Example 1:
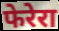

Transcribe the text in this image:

फेरेरा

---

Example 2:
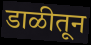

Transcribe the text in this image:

डाळीतून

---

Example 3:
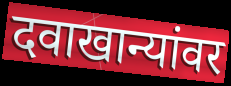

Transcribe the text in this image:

दवाखान्यांवर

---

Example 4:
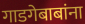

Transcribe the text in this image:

गाडगेबाबांना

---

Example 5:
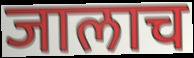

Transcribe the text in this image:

जालाच